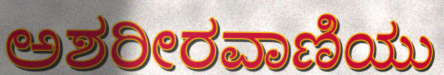
ಅಶರೀರವಾಣಿಯು